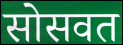
सोसवत